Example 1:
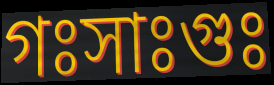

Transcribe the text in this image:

গঃসাঃগুঃ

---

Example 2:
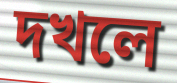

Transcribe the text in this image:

দখলে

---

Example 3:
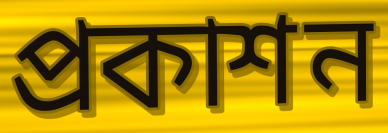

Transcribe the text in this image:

প্ৰকাশন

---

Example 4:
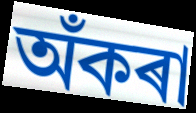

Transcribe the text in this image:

অঁকৰা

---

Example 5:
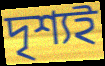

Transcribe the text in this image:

দৃশ্যই